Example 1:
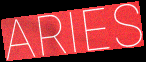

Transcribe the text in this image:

ARIES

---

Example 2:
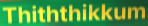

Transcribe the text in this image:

Thiththikkum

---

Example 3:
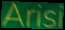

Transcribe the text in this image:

Arisi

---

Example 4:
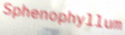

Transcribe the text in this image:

Sphenophyllum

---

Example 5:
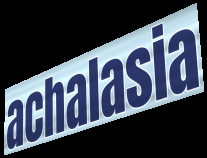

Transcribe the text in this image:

achalasia